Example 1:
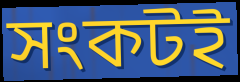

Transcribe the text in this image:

সংকটই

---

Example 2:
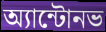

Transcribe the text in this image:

অ্যান্টোনভ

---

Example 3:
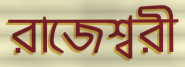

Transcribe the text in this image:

রাজেশ্বরী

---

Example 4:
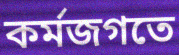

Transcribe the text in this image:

কর্মজগতে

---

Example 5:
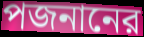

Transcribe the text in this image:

পজনানের